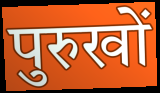
पुरुखों